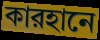
কারহানে